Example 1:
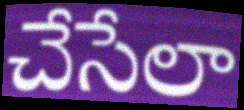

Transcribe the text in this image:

చేసేలా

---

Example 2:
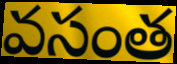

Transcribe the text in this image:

వసంత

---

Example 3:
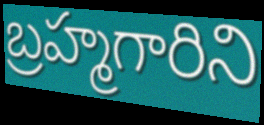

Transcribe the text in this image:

బ్రహ్మగారిని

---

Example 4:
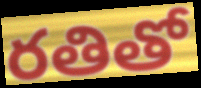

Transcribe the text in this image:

రతితో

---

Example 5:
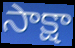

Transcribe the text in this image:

సాక్షా